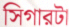
সিগারটা